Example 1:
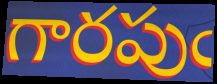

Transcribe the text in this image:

గారపుఁ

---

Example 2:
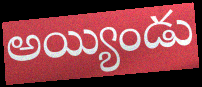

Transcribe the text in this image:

అయ్యిండు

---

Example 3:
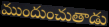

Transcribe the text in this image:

ముందుంచుతాడు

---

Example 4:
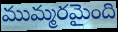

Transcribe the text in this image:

ముమ్మరమైంది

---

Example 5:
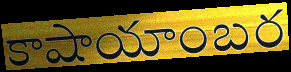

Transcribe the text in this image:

కాషాయాంబర